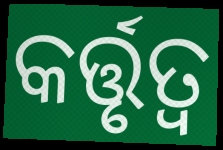
କର୍ତ୍ତୃତ୍ଵ